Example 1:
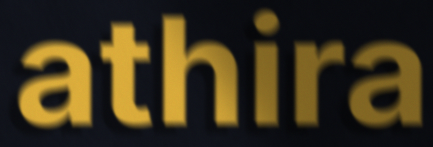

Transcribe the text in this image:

athira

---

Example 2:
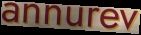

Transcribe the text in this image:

annurev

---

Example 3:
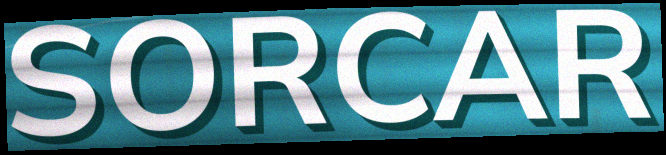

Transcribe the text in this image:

SORCAR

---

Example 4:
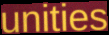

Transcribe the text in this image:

unities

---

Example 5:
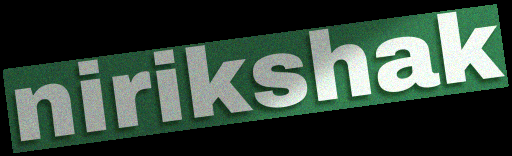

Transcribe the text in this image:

nirikshak